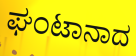
ಘಂಟಾನಾದ